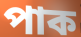
পাক